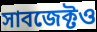
সাবজেক্টও